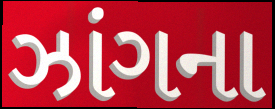
ઝાંગના